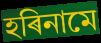
হৰিনামে